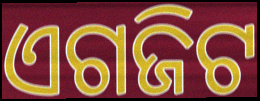
ଏଗଜିଟ